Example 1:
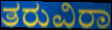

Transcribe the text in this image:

ತರುವಿರಾ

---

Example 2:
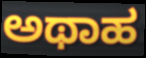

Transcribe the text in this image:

ಅಥಾಹ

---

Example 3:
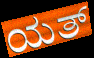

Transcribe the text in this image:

ಯತ್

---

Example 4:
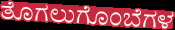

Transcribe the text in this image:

ತೊಗಲುಗೊಂಬೆಗಳ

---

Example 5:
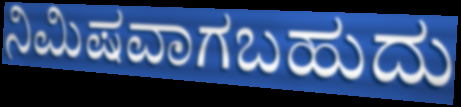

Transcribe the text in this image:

ನಿಮಿಷವಾಗಬಹುದು